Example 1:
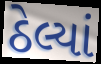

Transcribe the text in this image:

ઠેલ્યાં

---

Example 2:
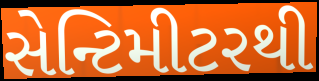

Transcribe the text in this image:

સેન્ટિમીટરથી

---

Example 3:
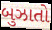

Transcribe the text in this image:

બુઝાતો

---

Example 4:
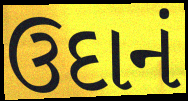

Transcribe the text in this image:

ઉદાનં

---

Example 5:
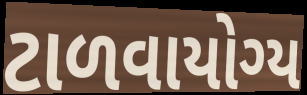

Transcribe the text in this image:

ટાળવાયોગ્ય